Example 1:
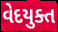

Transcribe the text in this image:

વેદયુક્ત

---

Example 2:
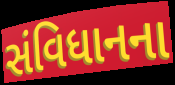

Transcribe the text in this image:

સંવિધાનના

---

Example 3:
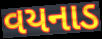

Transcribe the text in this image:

વયનાડ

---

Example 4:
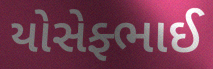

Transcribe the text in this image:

યોસેફ્ભાઈ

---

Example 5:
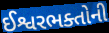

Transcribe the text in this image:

ઈશ્વરભક્તોની